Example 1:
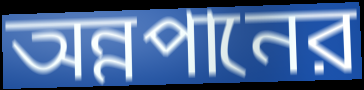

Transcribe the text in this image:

অন্নপানের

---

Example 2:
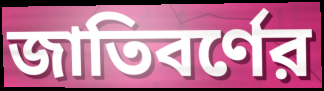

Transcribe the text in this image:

জাতিবর্ণের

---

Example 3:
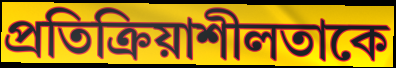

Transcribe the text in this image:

প্রতিক্রিয়াশীলতাকে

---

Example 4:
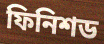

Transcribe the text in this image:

ফিনিশড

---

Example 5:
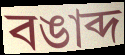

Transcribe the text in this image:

বঙাব্দ